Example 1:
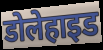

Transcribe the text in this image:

डोलेहाइड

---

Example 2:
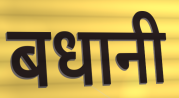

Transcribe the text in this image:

बधानी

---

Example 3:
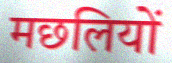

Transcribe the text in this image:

मछलियों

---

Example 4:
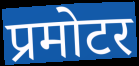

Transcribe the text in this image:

प्रमोटर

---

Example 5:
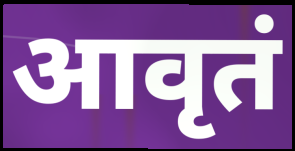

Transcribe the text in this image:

आवृतं